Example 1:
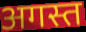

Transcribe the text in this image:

अगस्‍त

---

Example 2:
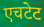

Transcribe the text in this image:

एचटेट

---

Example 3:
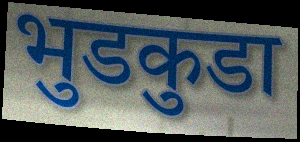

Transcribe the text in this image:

भुडकुडा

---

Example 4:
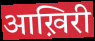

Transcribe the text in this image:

आख़िरी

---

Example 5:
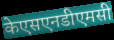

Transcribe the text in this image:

केएसएनडीएमसी